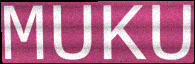
MUKU